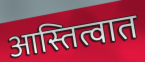
आस्तित्वात